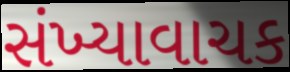
સંખ્યાવાચક